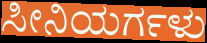
ಸೀನಿಯರ್ಗಳು